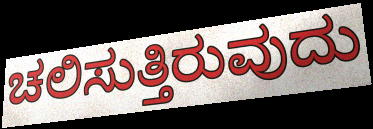
ಚಲಿಸುತ್ತಿರುವುದು